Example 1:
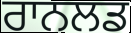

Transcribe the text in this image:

ਰਾਨਲਡ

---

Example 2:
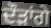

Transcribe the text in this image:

ਦੌੜਾਂਗੇ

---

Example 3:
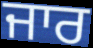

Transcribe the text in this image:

ਜਾਰ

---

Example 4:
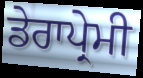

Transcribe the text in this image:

ਡੇਰਾਪ੍ਰੇਮੀ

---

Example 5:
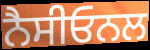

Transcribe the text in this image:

ਨੈਸੀਓਨਲ